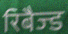
रिबैज्ड